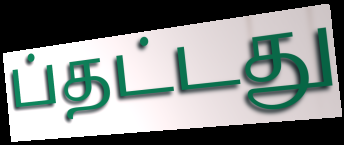
ப்தட்டது